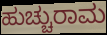
ಹುಚ್ಚುರಾಮ